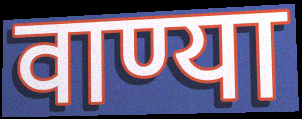
वाण्या